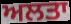
ਅਲਤਾ